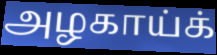
அழகாய்க்